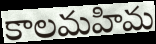
కాలమహిమ